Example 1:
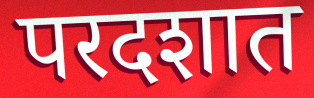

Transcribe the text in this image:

परदशात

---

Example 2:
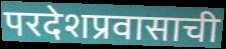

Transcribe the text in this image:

परदेशप्रवासाची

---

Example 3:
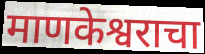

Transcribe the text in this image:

माणकेश्वराचा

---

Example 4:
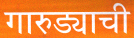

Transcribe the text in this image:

गारुड्याची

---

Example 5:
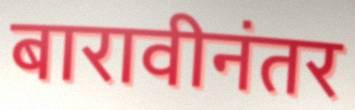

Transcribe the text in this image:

बारावीनंतर